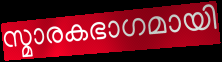
സ്മാരകഭാഗമായി